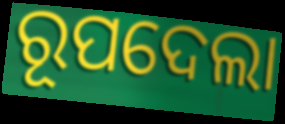
ରୂପଦେଲା